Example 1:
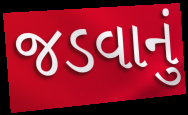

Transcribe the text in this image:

જડવાનું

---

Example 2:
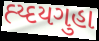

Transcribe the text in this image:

હ્ય્દયગુહા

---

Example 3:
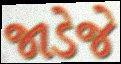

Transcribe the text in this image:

જાડેજે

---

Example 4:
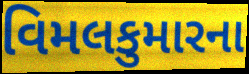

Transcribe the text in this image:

વિમલકુમારના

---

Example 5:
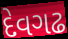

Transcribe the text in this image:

દેવગઢ